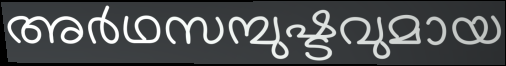
അർഥസമ്പുഷ്ടവുമായ